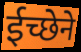
ईच्छेने